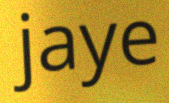
jaye